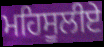
ਮਹਿਸੂਲੀਏ